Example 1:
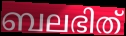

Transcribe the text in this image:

ബലഭിത്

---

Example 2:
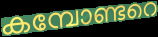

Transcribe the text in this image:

കമ്പോണ്ടറെ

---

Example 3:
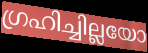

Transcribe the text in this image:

ഗ്രഹിച്ചില്ലയോ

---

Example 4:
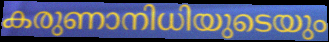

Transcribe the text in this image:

കരുണാനിധിയുടെയും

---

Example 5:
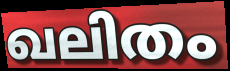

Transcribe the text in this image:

ഖലിതം